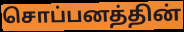
சொப்பனத்தின்